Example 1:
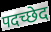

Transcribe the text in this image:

पदच्छेद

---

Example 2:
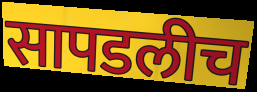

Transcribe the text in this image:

सापडलीच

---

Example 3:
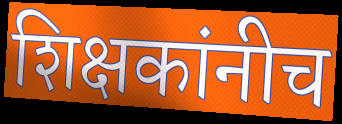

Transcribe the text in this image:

शिक्षकांनीच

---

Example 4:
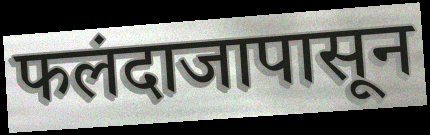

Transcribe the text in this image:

फलंदाजापासून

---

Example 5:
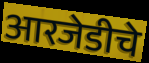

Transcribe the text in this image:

आरजेडीचे